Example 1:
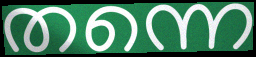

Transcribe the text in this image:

തന്നെ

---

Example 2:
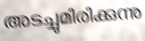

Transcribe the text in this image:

അടച്ചുമിരിക്കുന്നു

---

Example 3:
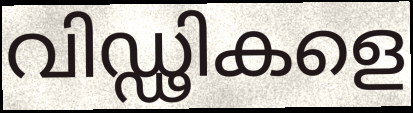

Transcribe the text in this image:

വിഡ്ഢികളെ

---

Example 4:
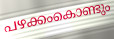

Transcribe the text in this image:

പഴക്കംകൊണ്ടും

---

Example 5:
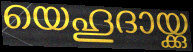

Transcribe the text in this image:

യെഹൂദായ്ക്കു